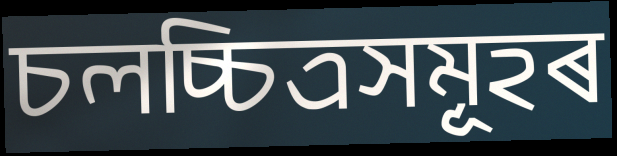
চলচ্চিত্ৰসমূহৰ